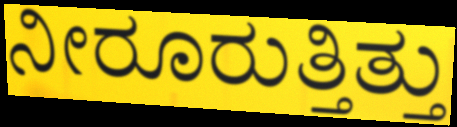
ನೀರೂರುತ್ತಿತ್ತು